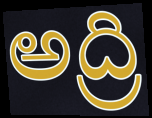
అద్రి